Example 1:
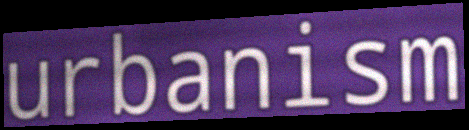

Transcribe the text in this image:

urbanism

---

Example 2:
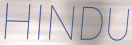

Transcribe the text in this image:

HINDU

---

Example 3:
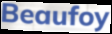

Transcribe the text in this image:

Beaufoy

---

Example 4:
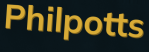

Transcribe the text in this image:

Philpotts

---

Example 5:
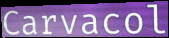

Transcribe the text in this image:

Carvacol